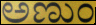
ಅಣುಂ